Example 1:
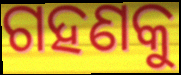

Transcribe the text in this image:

ଗହଣକୁ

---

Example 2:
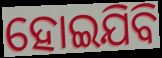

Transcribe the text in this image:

ହୋଇଯିବି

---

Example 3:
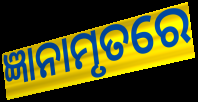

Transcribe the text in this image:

ଜ୍ଞାନାମୃତରେ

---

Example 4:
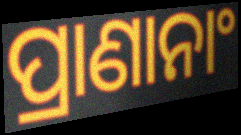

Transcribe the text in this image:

ପ୍ରାଣାନାଂ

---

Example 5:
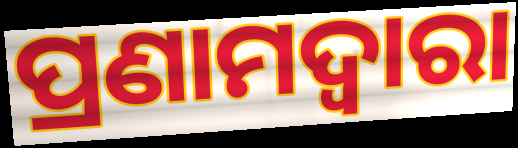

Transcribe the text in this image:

ପ୍ରଣାମଦ୍ୱାରା